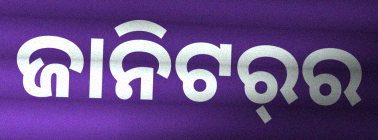
ଜାନିଟର୍‌ର